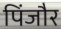
पिंजौर